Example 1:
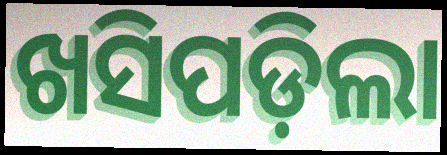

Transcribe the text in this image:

ଖସିପଡ଼ିଲା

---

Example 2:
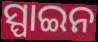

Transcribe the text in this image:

ସ୍ପାଇନ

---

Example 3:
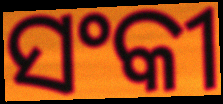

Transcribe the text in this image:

ସଂକୀ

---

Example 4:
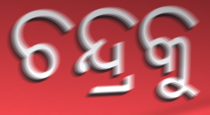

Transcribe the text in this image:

ଚନ୍ଦ୍ରକୁ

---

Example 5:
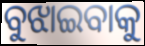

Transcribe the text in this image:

ବୁଝାଇବାକୁ